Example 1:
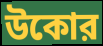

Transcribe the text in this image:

উকোর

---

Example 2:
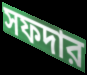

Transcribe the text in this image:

সফদার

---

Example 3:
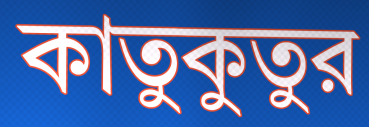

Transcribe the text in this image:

কাতুকুতুর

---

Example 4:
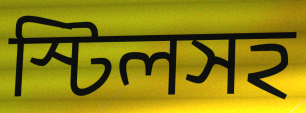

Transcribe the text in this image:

স্টিলসহ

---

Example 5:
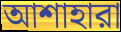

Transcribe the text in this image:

আশাহারা